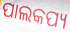
ପାଲକପ୍ୟ